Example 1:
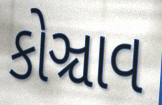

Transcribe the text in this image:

કોઞ્ચાવ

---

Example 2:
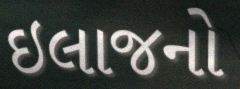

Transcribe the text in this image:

ઇલાજનો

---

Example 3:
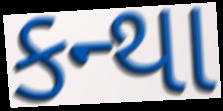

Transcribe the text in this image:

કન્થા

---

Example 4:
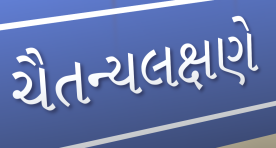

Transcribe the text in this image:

ચૈતન્યલક્ષણે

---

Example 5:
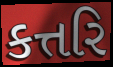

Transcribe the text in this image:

કત્તરિ